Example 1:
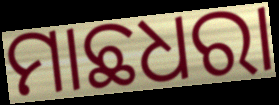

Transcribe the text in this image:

ମାଛଧରା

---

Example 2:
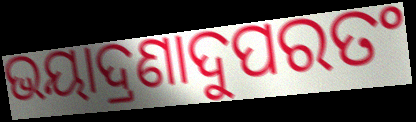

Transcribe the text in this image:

ଭୟାଦ୍ରଣାଦୁପରତଂ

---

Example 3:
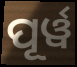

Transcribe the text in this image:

ପୂର୍ୱ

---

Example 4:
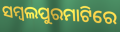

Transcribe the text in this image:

ସମ୍ବଲପୁରମାଟିରେ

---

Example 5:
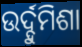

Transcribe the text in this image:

ଉର୍ଦ୍ଦୁମିଶା